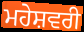
ਮਹੇਸ਼ਵਰੀ